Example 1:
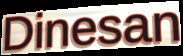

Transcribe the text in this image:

Dinesan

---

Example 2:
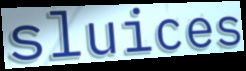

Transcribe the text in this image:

sluices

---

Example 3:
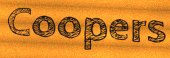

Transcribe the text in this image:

Coopers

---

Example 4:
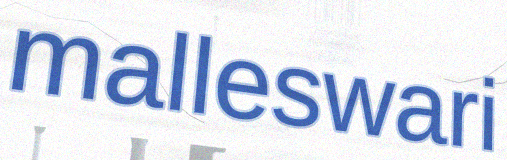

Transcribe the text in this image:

malleswari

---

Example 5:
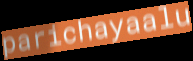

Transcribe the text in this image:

parichayaalu